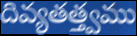
దివ్యతత్త్వము